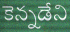
కెన్నడేని